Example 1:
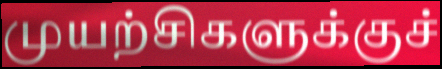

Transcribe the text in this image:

முயற்சிகளுக்குச்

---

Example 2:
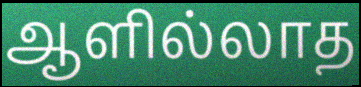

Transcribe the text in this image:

ஆளில்லாத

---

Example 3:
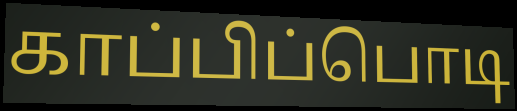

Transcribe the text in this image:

காப்பிப்பொடி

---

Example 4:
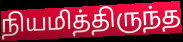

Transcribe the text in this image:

நியமித்திருந்த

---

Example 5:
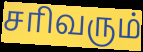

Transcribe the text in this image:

சரிவரும்